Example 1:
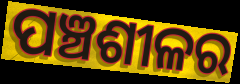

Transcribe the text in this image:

ପଞ୍ଚଶୀଳର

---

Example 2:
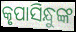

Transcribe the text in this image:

କୃପାସିନ୍ଧୁଙ୍କ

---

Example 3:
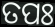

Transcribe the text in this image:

ତପଃ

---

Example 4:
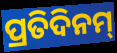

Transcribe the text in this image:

ପ୍ରତିଦିନମ୍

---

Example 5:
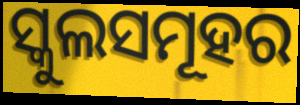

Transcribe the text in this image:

ସ୍କୁଲସମୂହର